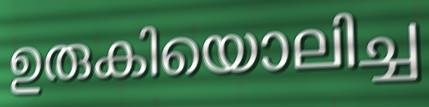
ഉരുകിയൊലിച്ച